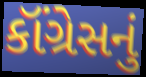
કૉંગ્રેસનું